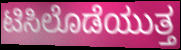
ಟಿಸಿಲೊಡೆಯುತ್ತ